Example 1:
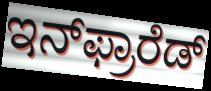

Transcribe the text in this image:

ಇನ್‌ಫ್ರಾರೆಡ್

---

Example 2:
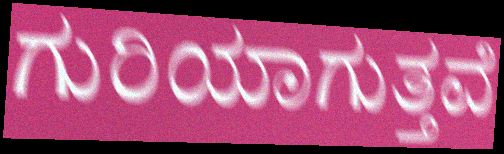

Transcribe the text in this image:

ಗುರಿಯಾಗುತ್ತವೆ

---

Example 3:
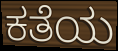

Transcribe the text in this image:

ಕತೆಯ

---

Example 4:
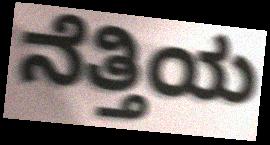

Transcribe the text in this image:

ನೆತ್ತಿಯ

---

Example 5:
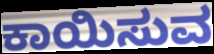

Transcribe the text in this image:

ಕಾಯಿಸುವ